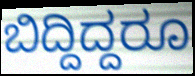
ಬಿದ್ದಿದ್ದರೂ